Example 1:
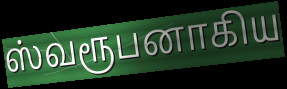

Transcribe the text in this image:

ஸ்வரூபனாகிய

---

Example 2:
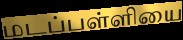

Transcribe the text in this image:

மடப்பள்ளியை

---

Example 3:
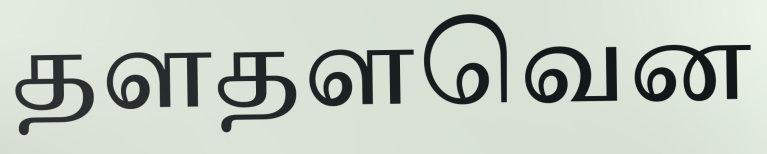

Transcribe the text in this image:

தளதளவென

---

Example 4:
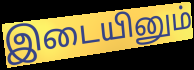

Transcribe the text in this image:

இடையினும்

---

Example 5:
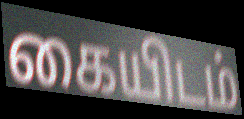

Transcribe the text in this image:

கையிடம்